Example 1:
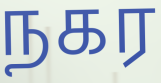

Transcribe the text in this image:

நகர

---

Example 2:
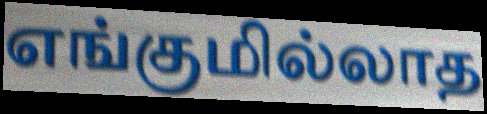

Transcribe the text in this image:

எங்குமில்லாத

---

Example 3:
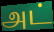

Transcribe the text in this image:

அட்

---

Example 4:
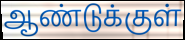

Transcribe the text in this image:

ஆண்டுக்குள்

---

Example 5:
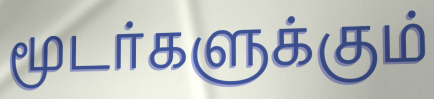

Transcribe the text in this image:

மூடர்களுக்கும்